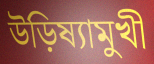
উড়িষ্যামুখী